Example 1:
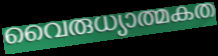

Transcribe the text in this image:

വൈരുധ്യാത്മകത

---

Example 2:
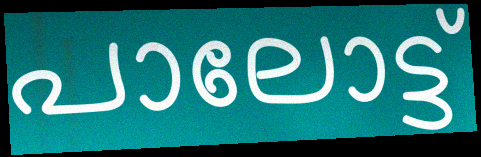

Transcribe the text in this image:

പാലോട്ട്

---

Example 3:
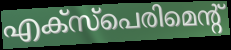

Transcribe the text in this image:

എക്സ്പെരിമെന്റ്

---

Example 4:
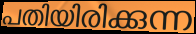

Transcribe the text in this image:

പതിയിരിക്കുന്ന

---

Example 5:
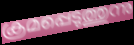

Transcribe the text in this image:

ക്രമപ്പെടുത്തുന്നു